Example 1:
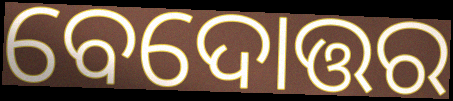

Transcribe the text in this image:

ବେଦୋତ୍ତର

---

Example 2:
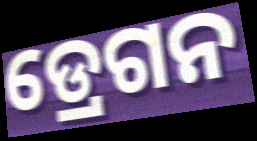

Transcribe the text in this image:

ଡ୍ରେଗନ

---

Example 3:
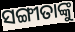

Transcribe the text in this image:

ସଙ୍ଗୀତାଙ୍କୁ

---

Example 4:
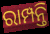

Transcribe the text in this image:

ରାମ୍ପନ୍ତି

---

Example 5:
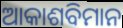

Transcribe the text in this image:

ଆକାଶବିମାନ